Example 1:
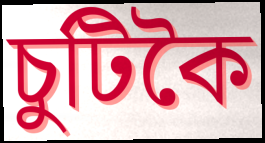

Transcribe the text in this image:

চুটিকৈ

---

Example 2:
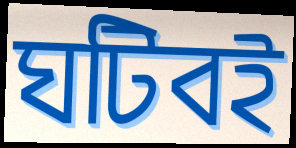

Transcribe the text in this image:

ঘটিবই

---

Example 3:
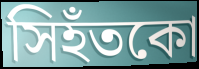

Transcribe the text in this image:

সিহঁতকো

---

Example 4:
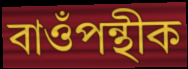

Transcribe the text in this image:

বাওঁপন্থীক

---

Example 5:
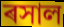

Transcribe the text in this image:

ৰসাল